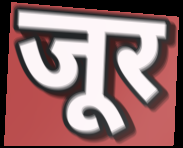
जूर